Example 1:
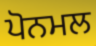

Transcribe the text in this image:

ਪੋਨਮਲ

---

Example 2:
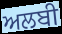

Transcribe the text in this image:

ਅਲਬੀ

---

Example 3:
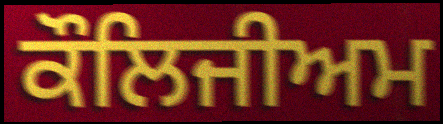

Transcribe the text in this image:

ਕੌਲਿਜੀਅਮ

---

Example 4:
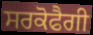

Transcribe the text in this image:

ਸਰਕੋਫੈਗੀ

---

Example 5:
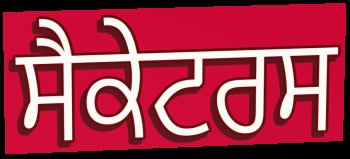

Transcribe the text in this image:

ਸੈਕੇਟਰਸ